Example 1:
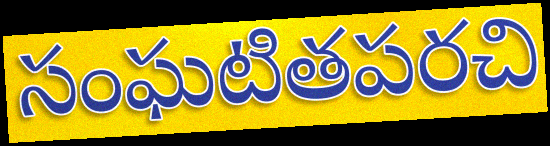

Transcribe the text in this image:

సంఘటితపరచి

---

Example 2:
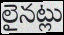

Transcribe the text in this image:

లైనట్లు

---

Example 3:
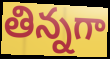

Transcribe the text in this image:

తిన్నగా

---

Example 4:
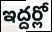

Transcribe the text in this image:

ఇద్దర్లో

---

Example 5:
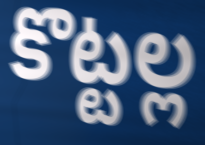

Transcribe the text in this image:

కొట్టల్ల